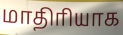
மாதிரியாக